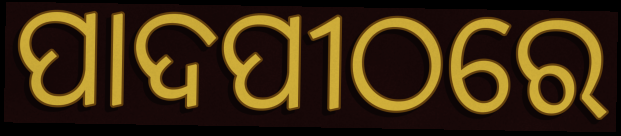
ପାଦପୀଠରେ